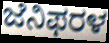
ಜೆನಿಫರಳ